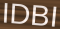
IDBI